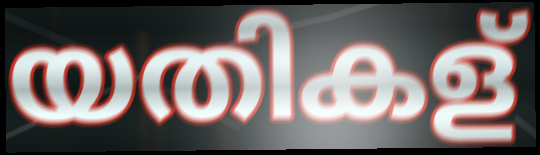
യതികള്